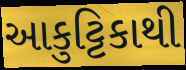
આકુટ્ટિકાથી